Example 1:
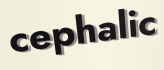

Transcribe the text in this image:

cephalic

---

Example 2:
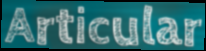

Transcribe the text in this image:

Articular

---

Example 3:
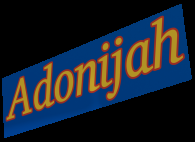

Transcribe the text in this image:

Adonijah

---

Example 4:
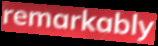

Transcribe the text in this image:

remarkably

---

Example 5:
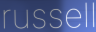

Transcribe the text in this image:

russell